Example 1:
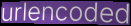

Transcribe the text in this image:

urlencoded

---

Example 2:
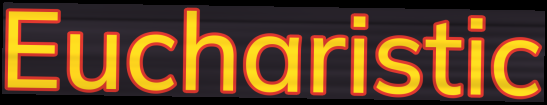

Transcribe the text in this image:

Eucharistic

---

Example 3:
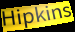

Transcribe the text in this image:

Hipkins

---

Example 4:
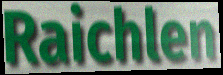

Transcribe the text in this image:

Raichlen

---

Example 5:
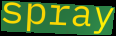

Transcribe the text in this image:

spray